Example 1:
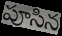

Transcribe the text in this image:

పూసిన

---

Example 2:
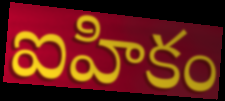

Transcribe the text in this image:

ఐహికం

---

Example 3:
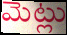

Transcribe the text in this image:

మెట్లు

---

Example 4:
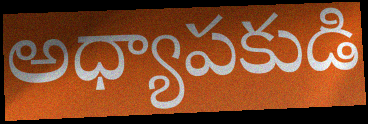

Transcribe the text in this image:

అధ్యాపకుడి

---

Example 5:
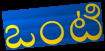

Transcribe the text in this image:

ఒంటి